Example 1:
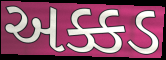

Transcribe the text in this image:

અક્કડ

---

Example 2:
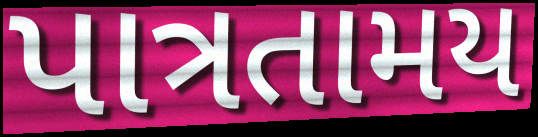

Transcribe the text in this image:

પાત્રતામય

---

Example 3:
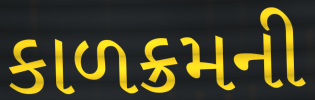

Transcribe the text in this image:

કાળક્રમની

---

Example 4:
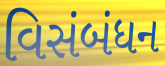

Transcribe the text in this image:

વિસંબંધન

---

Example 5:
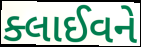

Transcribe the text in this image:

ક્લાઈવને